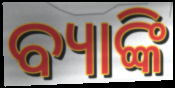
ବ୍ୟାଙ୍କି